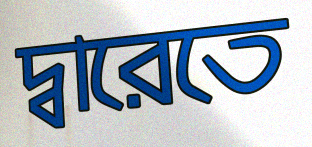
দ্বারেতে